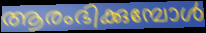
ആരംഭിക്കുമ്പോൾ